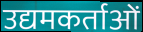
उद्यमकर्ताओं